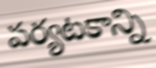
పర్యటకాన్ని